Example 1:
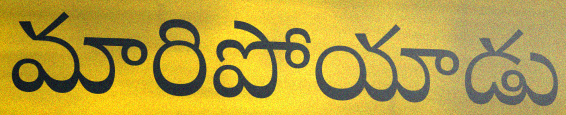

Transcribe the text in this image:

మారిపోయాడు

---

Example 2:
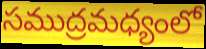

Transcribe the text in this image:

సముద్రమధ్యంలో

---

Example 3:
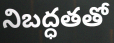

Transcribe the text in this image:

నిబద్ధతతో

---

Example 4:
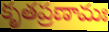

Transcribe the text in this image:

కృతప్రణామః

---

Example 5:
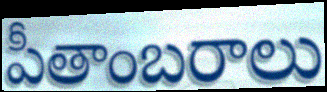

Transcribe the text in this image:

పీతాంబరాలు